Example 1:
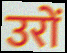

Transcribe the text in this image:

उरों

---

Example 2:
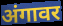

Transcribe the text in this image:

अंगावर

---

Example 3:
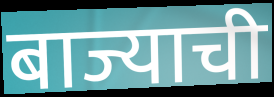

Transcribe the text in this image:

बाज्याची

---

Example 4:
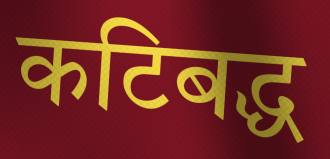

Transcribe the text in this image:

कटिबद्ध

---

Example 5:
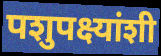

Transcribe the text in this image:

पशुपक्ष्यांशी